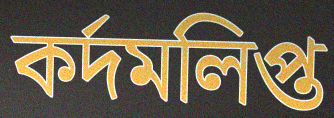
কর্দমলিপ্ত